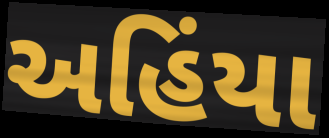
અહિંયા